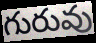
గురువు